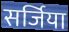
सर्जिया